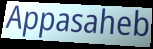
Appasaheb